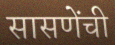
सासणेंची